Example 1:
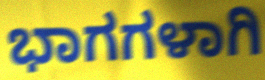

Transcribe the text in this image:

ಭಾಗಗಳಾಗಿ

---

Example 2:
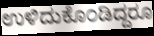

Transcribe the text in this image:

ಉಳಿದುಕೊಂಡಿದ್ದರೂ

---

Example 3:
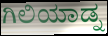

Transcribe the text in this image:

ಗಿಲಿಯಾಡ್ನ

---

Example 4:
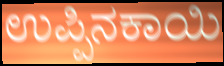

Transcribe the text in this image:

ಉಪ್ಪಿನಕಾಯಿ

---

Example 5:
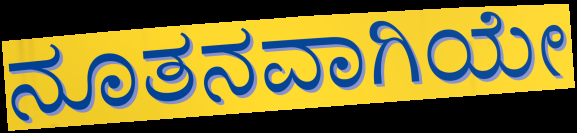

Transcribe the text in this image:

ನೂತನವಾಗಿಯೇ